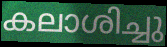
കലാശിച്ചു